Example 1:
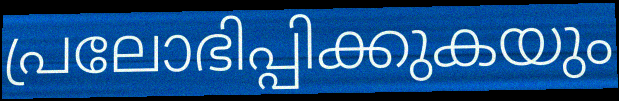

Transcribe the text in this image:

പ്രലോഭിപ്പിക്കുകയും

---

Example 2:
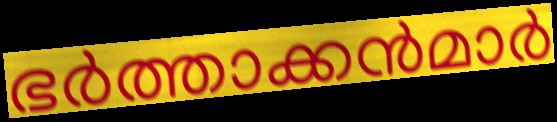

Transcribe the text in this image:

ഭർത്താക്കൻമാർ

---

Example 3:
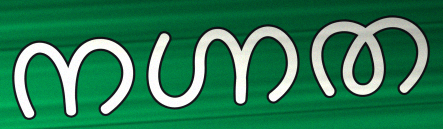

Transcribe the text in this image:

നഗ്നത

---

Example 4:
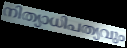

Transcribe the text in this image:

നിത്യാധിപത്യവും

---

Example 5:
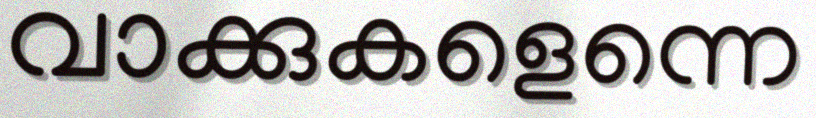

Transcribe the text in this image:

വാക്കുകളെന്നെ